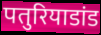
पतुरियाडांड